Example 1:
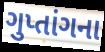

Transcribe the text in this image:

ગુપ્તાંગના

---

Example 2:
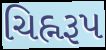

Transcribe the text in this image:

ચિહ્નરૂપ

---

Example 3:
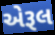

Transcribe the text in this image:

એરૂલ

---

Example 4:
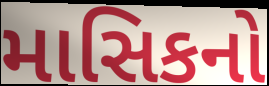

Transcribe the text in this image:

માસિકનો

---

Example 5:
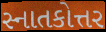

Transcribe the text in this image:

સ્નાતકોત્તર